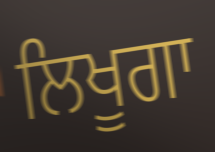
ਲਿਖੂਗਾ